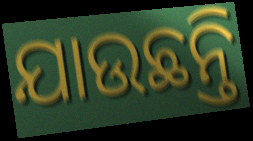
ଯାଉଛନ୍ତି